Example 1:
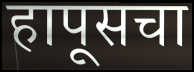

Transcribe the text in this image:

हापूसचा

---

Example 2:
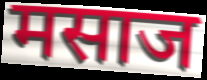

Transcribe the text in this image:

मसाज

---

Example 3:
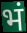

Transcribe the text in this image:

भं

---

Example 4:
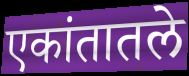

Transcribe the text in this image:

एकांतातले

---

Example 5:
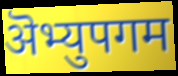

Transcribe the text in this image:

ऄभ्युपगम